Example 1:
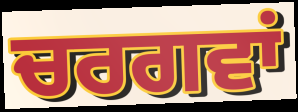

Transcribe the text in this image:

ਚਰਗਵਾਂ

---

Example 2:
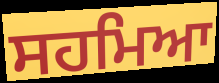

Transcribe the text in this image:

ਸਹਮਿਆ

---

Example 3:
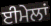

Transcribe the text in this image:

ਈਮੇਲਾਂ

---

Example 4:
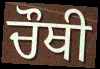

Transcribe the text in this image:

ਚੌਥੀ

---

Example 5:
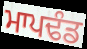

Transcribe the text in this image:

ਮਾਪਢੰਡ